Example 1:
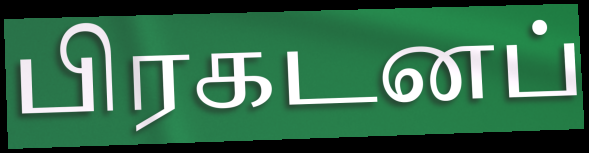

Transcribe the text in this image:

பிரகடனப்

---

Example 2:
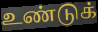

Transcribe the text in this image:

உண்டுக்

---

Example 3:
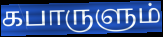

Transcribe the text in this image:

கபாருளும்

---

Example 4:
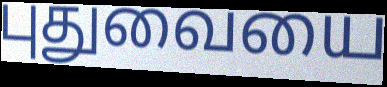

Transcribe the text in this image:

புதுவையை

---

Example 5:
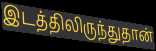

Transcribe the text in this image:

இடத்திலிருந்துதான்